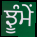
ਝੂੰਮੇਂ